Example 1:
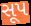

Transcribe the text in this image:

સૂપ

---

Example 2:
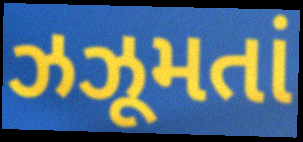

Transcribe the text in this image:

ઝઝૂમતાં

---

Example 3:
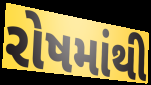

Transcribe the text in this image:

રોષમાંથી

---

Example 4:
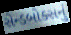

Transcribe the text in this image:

સેન્ડબોક્સનું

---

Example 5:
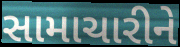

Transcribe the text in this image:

સામાચારીને